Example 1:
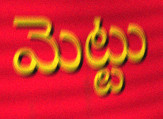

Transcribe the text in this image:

మెట్టు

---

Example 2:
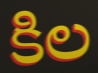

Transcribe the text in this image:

కిల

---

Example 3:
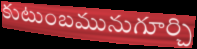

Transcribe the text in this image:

కుటుంబమునుగూర్చి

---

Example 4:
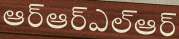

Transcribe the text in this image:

ఆర్ఆర్ఎల్ఆర్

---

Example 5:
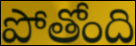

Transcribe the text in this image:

పోతోంది